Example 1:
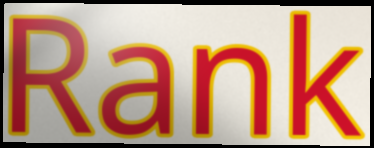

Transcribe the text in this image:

Rank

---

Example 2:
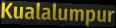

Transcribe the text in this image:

Kualalumpur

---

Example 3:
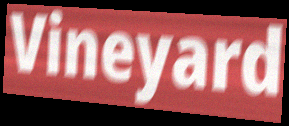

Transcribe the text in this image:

Vineyard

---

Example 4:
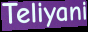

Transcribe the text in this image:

Teliyani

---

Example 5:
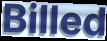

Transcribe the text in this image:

Billed